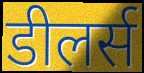
डीलर्स